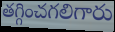
తగ్గించగలిగారు